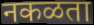
नकळता